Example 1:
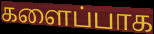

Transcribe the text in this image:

களைப்பாக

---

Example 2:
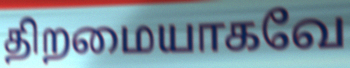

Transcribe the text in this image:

திறமையாகவே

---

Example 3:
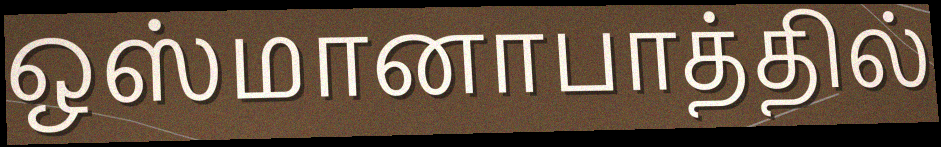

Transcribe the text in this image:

ஒஸ்மானாபாத்தில்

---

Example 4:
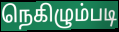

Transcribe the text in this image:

நெகிழும்படி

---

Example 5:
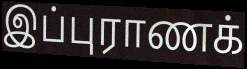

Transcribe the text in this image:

இப்புராணக்